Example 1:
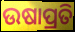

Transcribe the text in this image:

ଉଷାପ୍ରତି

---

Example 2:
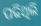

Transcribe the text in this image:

ପଢିଥିଲି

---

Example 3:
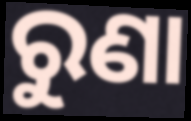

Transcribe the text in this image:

ରୁଣା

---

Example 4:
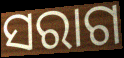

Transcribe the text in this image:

ସରାଗ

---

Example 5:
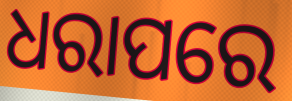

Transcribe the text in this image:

ଧରାପରେ